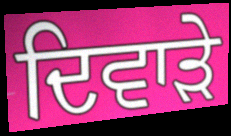
ਦਿਵਾੜੇ